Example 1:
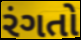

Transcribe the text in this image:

રંગતો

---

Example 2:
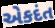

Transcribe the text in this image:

એકદંત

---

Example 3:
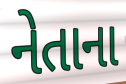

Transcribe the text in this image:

નેતાના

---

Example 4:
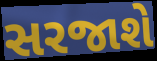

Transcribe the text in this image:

સરજાશે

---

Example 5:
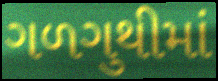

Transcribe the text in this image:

ગળગુથીમાં